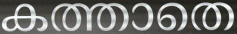
കത്താതെ